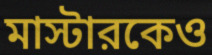
মাস্টারকেও